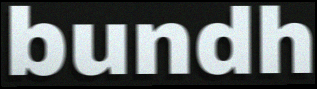
bundh